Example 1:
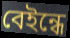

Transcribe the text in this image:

বেইন্ধে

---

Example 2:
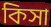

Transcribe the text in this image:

কিসা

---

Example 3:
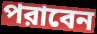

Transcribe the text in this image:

পরাবেন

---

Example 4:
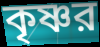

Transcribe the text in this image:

কৃষ্ণর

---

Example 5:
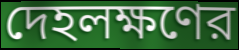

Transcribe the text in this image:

দেহলক্ষণের